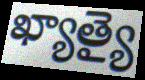
ఖ్యాత్యై